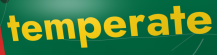
temperate